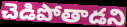
చెడిపోతాడని